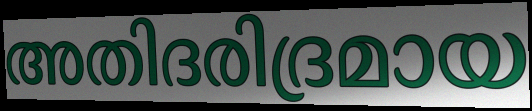
അതിദരിദ്രമായ